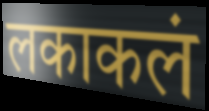
लकाकलं